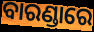
ବାରଣ୍ଡାରେ